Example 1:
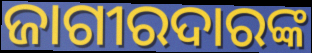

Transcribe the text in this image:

ଜାଗୀରଦାରଙ୍କ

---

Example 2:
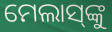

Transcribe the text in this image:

ମେଲାସ୍‌ଙ୍କୁ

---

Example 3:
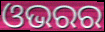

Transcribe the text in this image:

ଓଭରର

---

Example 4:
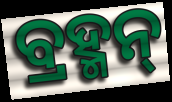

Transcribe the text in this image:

ବ୍ରହ୍ମନ୍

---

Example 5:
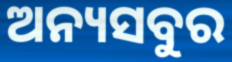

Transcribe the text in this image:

ଅନ୍ୟସବୁର